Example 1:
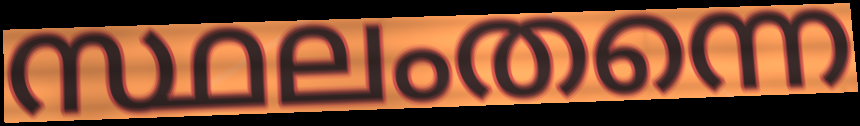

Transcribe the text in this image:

സ്ഥലംതന്നെ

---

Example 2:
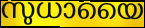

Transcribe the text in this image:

സുധായൈ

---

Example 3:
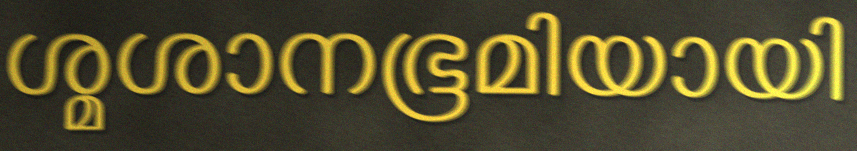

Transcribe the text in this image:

ശ്മശാനഭൂമിയായി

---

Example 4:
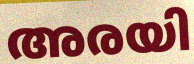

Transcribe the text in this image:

അരയി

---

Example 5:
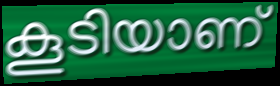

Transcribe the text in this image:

കൂടിയാണ്